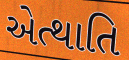
એત્થાતિ